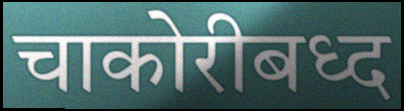
चाकोरीबध्द